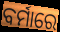
ବର୍ମାରେ